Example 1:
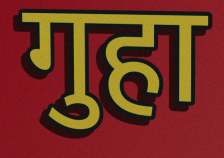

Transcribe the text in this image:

गुहा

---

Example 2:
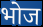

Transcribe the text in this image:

भोज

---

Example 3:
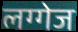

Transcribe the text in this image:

लग्गेज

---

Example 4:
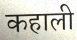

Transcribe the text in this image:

कहाली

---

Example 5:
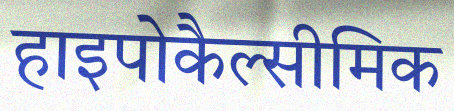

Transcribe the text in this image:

हाइपोकैल्सीमिक